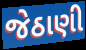
જેઠાણી